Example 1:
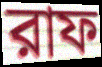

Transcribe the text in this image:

রাফ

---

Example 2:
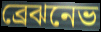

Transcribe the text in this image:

ব্রেঝনেভ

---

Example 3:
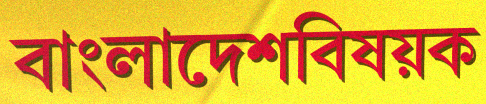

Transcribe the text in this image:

বাংলাদেশবিষয়ক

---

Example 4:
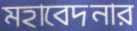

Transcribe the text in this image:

মহাবেদনার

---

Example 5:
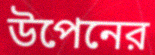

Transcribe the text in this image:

উপেনের